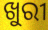
ଖୁରୀ